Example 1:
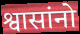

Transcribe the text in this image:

श्वासांनो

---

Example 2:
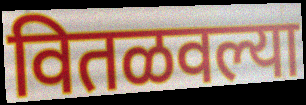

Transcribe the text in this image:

वितळवल्या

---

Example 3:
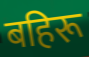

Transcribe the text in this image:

बहिरू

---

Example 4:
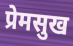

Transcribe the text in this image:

प्रेमसुख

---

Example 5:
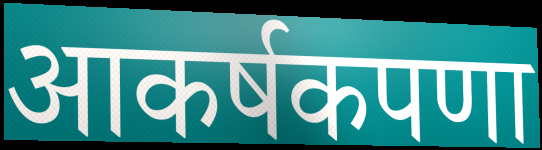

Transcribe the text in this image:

आकर्षकपणा